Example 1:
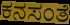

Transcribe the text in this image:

ಕನಸಂತೆ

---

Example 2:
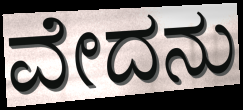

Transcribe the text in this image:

ವೇದನು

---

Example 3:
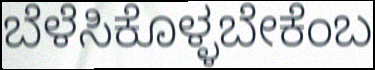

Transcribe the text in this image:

ಬೆಳೆಸಿಕೊಳ್ಳಬೇಕೆಂಬ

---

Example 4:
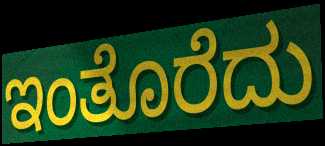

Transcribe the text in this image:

ಇಂತೊರೆದು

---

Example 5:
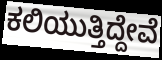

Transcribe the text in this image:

ಕಲಿಯುತ್ತಿದ್ದೇವೆ